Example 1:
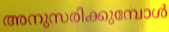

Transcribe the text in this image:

അനുസരിക്കുമ്പോൾ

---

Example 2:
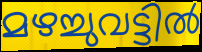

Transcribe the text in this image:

മഴച്ചുവട്ടിൽ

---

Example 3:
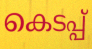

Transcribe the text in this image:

കെടപ്പ്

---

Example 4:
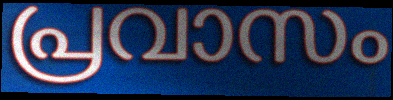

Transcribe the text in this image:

പ്രവാസം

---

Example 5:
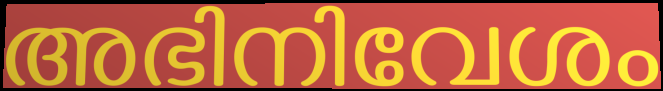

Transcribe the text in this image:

അഭിനിവേശം